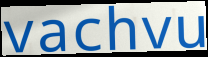
vachvu